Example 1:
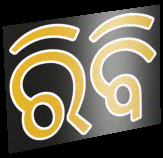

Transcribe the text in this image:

ରିବି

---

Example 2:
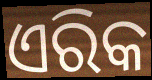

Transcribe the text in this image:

ଏରିକ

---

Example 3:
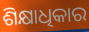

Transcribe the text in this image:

ଶିକ୍ଷାଧିକାର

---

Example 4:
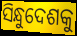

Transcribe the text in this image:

ସିନ୍ଧୁଦେଶକୁ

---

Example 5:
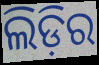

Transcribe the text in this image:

ଲିଡ଼ିର